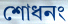
শোধনং